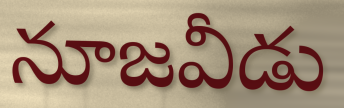
నూజవీడు